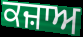
ਕਜ਼ਾਅ